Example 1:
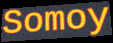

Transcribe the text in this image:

Somoy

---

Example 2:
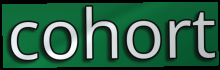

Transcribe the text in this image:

cohort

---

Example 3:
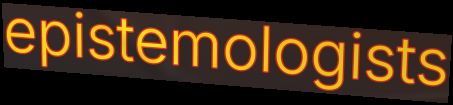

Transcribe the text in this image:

epistemologists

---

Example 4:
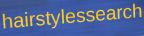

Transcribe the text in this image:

hairstylessearch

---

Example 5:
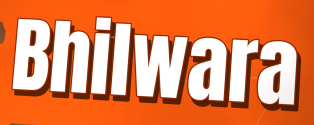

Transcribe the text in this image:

Bhilwara